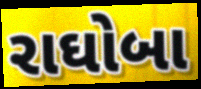
રાઘોબા